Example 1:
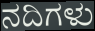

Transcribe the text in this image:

ನದಿಗಳು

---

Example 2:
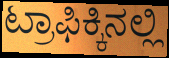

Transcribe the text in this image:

ಟ್ರಾಫಿಕ್ಕಿನಲ್ಲಿ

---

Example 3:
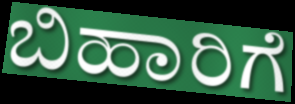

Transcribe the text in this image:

ಬಿಹಾರಿಗೆ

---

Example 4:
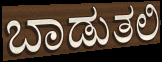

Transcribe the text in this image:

ಬಾಡುತಲಿ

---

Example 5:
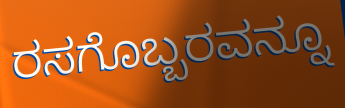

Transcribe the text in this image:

ರಸಗೊಬ್ಬರವನ್ನೂ